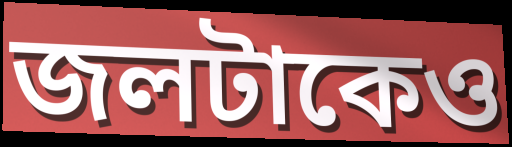
জলটাকেও